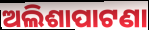
ଅଲିଶାପାଟଣା